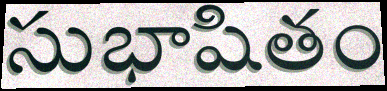
సుభాషితం